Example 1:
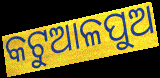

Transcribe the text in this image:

କଟୁଆଳପୁଅ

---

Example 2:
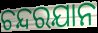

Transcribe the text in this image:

ଚନ୍ଦରଯାନ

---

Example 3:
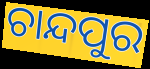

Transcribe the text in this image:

ଚାନ୍ଦପୁର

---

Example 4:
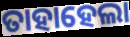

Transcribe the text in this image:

ତାହାହେଲା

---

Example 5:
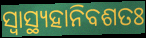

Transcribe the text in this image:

ସ୍ୱାସ୍ଥ୍ୟହାନିବଶତଃ